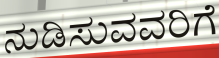
ನುಡಿಸುವವರಿಗೆ